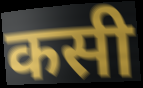
कसी